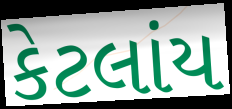
કેટલાંય